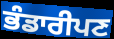
ਭੰਡਾਰੀਪਣ